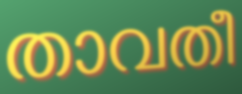
താവതീ